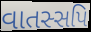
વાતસ્સપિ